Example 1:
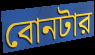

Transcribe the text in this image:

বোনটার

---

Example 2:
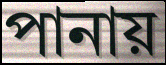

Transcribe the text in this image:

পানায়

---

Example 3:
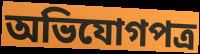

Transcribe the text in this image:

অভিযোগপত্র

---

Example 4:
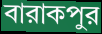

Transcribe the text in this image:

বারাকপুর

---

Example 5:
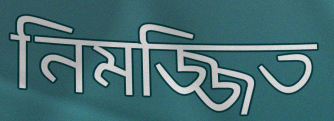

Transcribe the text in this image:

নিমজ্জিত